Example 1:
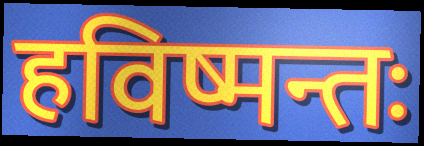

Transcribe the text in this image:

हविष्मन्तः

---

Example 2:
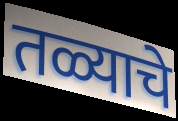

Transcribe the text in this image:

तळ्याचे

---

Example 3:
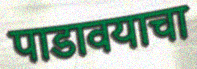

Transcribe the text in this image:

पाडावयाचा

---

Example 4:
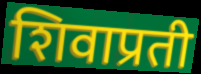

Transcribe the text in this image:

शिवाप्रती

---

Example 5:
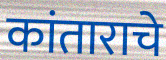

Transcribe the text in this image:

कांताराचे